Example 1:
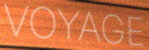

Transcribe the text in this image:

VOYAGE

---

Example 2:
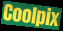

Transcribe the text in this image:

Coolpix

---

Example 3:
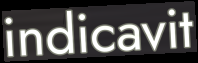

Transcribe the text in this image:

indicavit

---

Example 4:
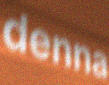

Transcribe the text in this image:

denna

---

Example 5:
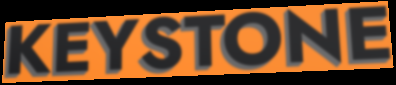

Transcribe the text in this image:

KEYSTONE